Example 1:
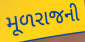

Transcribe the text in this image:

મૂળરાજની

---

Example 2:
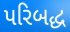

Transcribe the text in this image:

પરિબદ્ધ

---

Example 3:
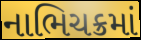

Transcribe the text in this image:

નાભિચક્રમાં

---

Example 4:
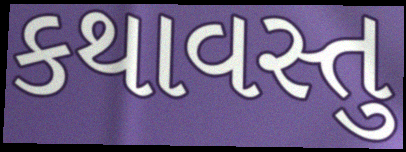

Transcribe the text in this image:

કથાવસ્તુ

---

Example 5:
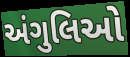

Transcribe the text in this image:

અંગુલિઓ